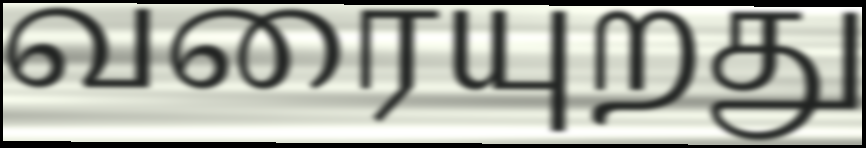
வரையுறது